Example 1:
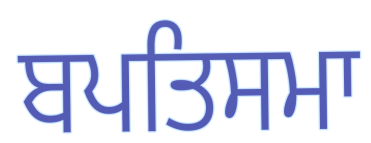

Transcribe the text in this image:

ਬਪਤਿਸਮਾ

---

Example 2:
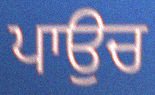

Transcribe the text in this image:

ਪਾਉਚ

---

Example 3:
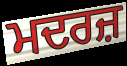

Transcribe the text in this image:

ਮਦਰਜ਼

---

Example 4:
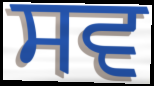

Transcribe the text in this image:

ਸਵ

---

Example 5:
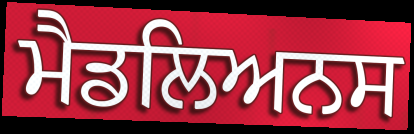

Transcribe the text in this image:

ਮੈਡਲਿਅਨਸ